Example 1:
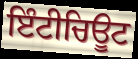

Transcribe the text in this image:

ਇੰਟੀਚਿਊਟ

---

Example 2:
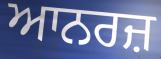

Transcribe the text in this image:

ਆਨਰਜ਼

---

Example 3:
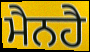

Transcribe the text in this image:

ਮੈਨਹੈ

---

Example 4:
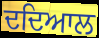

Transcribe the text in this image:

ਦਦਿਆਲ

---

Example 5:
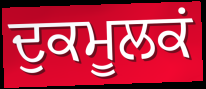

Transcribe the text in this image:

ਦੁਕਮੂਲਕਂ